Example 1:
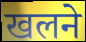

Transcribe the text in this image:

खलने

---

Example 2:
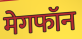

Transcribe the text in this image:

मेगफॉन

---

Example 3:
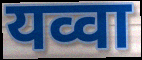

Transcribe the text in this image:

यव्वा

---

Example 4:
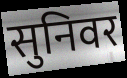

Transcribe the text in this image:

सुनिवर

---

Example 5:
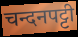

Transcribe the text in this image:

चन्दनपट्टी